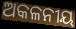
ଅକଳନୀୟ